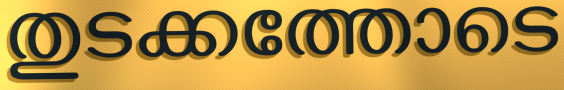
തുടക്കത്തോടെ